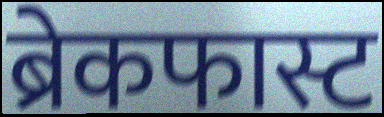
ब्रेकफास्ट